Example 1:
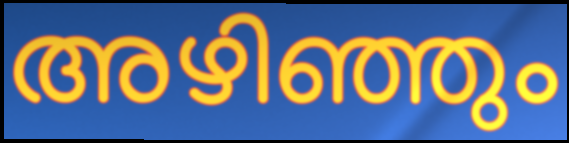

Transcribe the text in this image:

അഴിഞ്ഞും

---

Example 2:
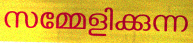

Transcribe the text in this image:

സമ്മേളിക്കുന്ന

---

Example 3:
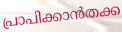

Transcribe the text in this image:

പ്രാപിക്കാൻതക്ക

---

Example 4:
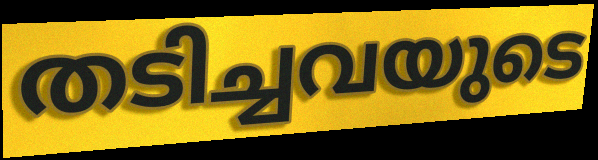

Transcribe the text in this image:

തടിച്ചവയുടെ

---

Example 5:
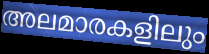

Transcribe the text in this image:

അലമാരകളിലും